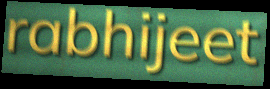
rabhijeet